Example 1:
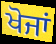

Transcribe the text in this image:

ਖੋਜਾਂ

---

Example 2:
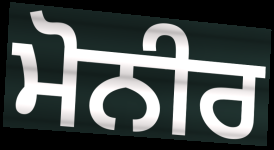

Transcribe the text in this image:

ਮੋਨੀਰ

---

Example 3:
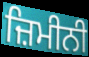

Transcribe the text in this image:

ਜ਼ਿਮੀਨੀ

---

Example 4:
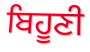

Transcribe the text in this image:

ਬਿਹੂਣੀ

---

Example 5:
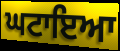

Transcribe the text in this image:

ਘਟਾਇਆ